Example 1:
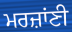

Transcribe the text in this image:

ਮਰਜ਼ਾਂਣੀ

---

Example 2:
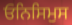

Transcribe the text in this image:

ਓਨਿਸਿਮੁਸ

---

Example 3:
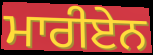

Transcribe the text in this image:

ਮਾਰੀਏਨ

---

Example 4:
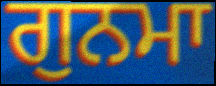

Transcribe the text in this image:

ਗੁਨਮਾ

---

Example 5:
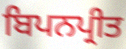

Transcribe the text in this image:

ਬਿਪਨਪ੍ਰੀਤ